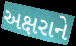
અક્ષરાને